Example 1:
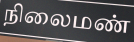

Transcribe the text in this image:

நிலைமண்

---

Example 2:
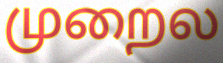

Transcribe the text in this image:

முறைல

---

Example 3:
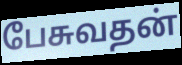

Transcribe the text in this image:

பேசுவதன்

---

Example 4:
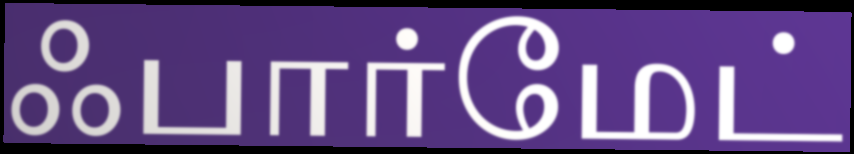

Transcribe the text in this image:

ஃபார்மேட்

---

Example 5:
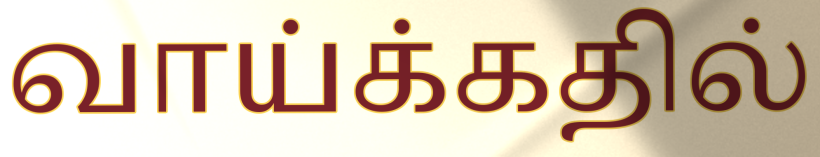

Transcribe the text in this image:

வாய்க்கதில்